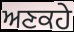
ਅਣਕਹੇ